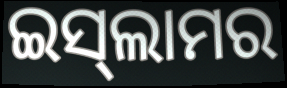
ଇସ୍‍ଲାମର